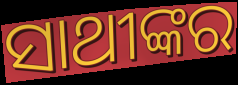
ସାଥୀଙ୍କର